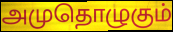
அமுதொழுகும்